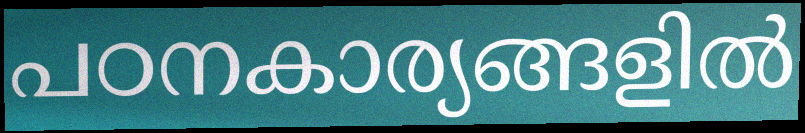
പഠനകാര്യങ്ങളിൽ